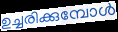
ഉച്ചരിക്കുമ്പോൾ